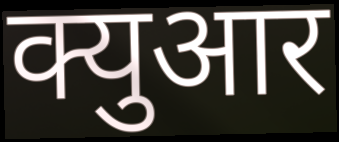
क्युआर